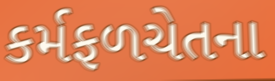
કર્મફળચેતના